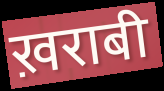
ख़राबी